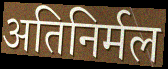
अतिनिर्मल